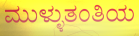
ಮುಳ್ಳುತಂತಿಯ